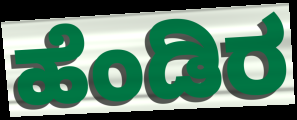
ಹೆಂಡಿರ